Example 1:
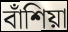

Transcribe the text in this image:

বাঁশিয়া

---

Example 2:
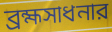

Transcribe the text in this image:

ব্রহ্মসাধনার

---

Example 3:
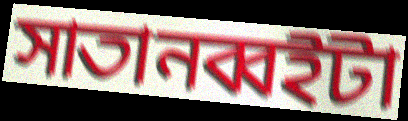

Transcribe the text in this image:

সাতানব্বইটা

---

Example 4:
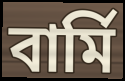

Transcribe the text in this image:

বার্মি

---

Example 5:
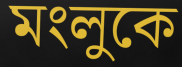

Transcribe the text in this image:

মংলুকে